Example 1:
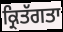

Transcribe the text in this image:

ਕ੍ਰਿਤੱਗਤਾ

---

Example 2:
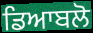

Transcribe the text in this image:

ਡਿਆਬਲੋ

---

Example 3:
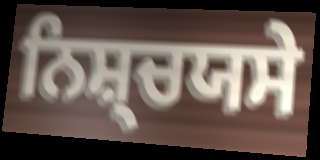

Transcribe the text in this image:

ਨਿਸ਼੍ਚਯਸੇ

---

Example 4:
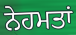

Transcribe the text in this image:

ਨੇਹਮਤਾਂ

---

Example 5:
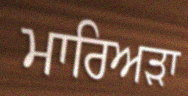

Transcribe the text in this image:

ਮਾਰਿਅੜਾ